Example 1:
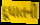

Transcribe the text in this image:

દૂધાતની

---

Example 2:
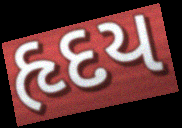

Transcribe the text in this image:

હૃદય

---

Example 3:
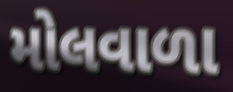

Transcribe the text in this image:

મોલવાળા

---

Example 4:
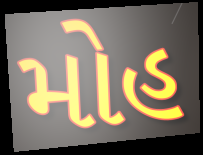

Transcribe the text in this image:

મોહ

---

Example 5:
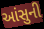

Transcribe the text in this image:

આંસુની